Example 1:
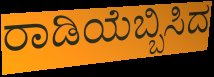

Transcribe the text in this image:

ರಾಡಿಯೆಬ್ಬಿಸಿದ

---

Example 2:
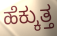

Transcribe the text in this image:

ಹೆಕ್ಕುತ್ತ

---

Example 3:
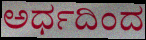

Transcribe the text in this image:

ಅರ್ಧದಿಂದ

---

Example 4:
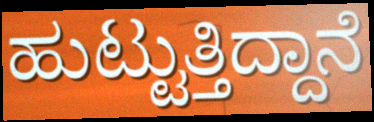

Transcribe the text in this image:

ಹುಟ್ಟುತ್ತಿದ್ದಾನೆ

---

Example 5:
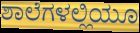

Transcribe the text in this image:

ಶಾಲೆಗಳಲ್ಲಿಯೂ